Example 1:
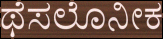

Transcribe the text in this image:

ಥೆಸಲೊನೀಕ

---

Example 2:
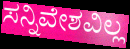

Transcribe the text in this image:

ಸನ್ನಿವೇಶವಿಲ್ಲ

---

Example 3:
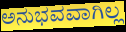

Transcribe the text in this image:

ಅನುಭವವಾಗಿಲ್ಲ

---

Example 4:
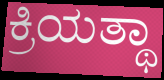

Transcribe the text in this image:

ಕ್ರಿಯತ್ಥಾ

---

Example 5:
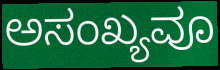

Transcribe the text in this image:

ಅಸಂಖ್ಯವೂ